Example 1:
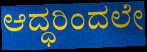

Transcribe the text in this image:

ಆದ್ಧರಿಂದಲೇ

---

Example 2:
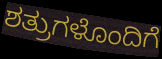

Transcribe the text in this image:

ಶತ್ರುಗಳೊಂದಿಗೆ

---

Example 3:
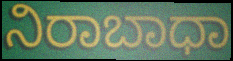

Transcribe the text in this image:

ನಿರಾಬಾಧಾ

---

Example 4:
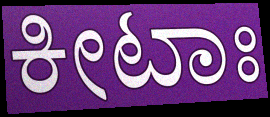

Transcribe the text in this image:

ಕೀಟಾಃ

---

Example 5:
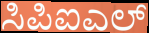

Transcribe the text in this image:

ಸಿಪಿಐಎಲ್